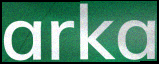
arka